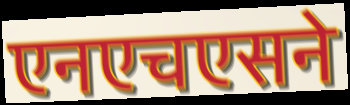
एनएचएसने